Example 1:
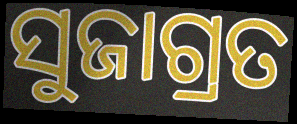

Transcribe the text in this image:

ସୁଜାଗ୍ରତ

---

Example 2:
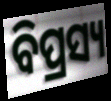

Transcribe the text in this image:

ବିପ୍ରସ୍ୟ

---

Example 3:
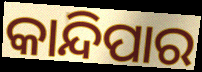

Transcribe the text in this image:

କାନ୍ଦିପାର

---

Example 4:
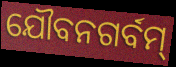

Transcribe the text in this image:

ଯୌବନଗର୍ବମ୍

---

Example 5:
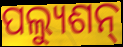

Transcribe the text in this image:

ପଲ୍ୟୁଶନ୍